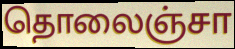
தொலைஞ்சா